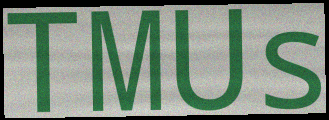
TMUs